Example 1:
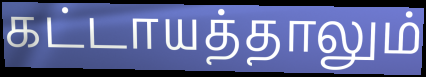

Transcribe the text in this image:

கட்டாயத்தாலும்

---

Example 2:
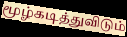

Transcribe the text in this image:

மூழ்கடித்துவிடும்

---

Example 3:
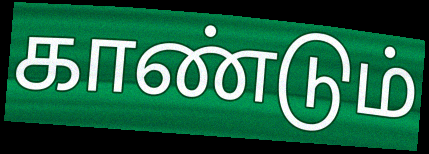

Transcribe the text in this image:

காண்டும்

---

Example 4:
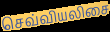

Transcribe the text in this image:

செவ்வியலிசை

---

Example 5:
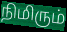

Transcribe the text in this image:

நிமிரும்